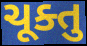
ચૂક્તુ